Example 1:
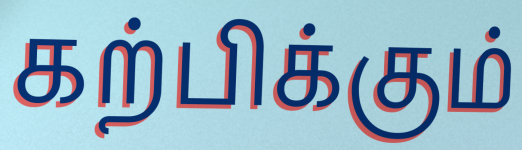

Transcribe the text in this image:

கற்பிக்கும்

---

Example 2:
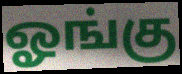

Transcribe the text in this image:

ஓங்கு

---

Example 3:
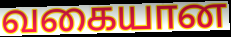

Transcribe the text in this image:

வகையான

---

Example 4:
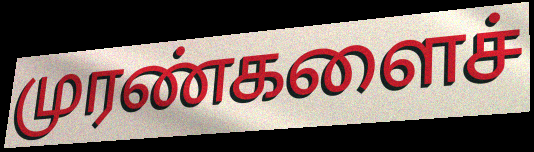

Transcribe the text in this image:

முரண்களைச்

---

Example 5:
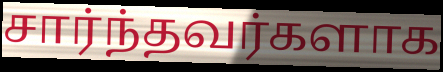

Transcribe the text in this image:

சார்ந்தவர்களாக